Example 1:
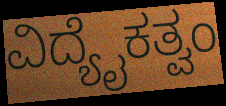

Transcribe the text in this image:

ವಿದ್ಯೈಕತ್ವಂ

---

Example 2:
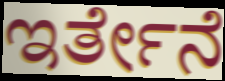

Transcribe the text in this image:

ಇರ್ತೇನೆ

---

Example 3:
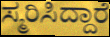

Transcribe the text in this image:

ಸ್ಮರಿಸಿದ್ದಾರೆ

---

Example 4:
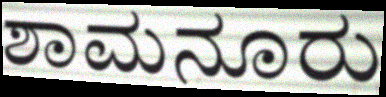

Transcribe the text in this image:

ಶಾಮನೂರು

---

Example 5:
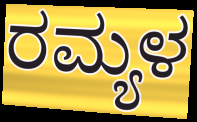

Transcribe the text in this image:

ರಮ್ಯಳ